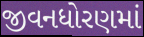
જીવનધોરણમાં